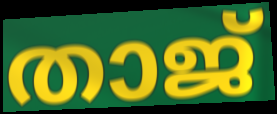
താജ്